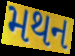
મથન